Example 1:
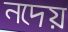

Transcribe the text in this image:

নদেয়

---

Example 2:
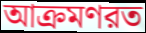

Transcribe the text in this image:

আক্রমণরত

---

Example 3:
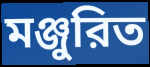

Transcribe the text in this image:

মঞ্জুরিত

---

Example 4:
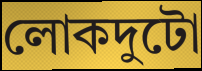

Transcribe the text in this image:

লোকদুটো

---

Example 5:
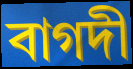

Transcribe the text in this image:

বাগদী